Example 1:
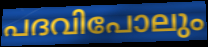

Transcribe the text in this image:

പദവിപോലും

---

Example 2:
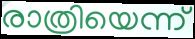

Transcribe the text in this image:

രാത്രിയെന്ന്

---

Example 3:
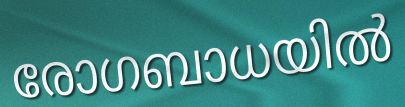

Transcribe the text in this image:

രോഗബാധയിൽ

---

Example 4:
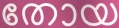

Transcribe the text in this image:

തോയ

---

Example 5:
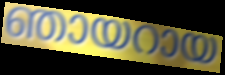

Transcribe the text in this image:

ഞായറായ